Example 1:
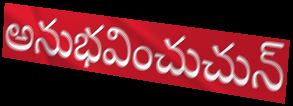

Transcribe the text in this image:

అనుభవించుచున్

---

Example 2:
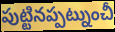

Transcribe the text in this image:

పుట్టినప్పట్నుంచీ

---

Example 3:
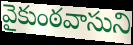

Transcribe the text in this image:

వైకుంఠవాసుని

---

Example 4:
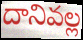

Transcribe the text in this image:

దానివల్ల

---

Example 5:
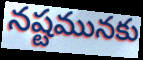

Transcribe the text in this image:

నష్టమునకు